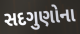
સદગુણોના